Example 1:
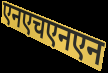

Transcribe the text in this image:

एनएचएनएन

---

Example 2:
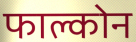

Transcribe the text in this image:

फाल्कोन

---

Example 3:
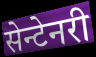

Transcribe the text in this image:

सेन्टेनरी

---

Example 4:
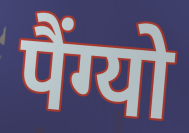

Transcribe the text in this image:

पैंग्यो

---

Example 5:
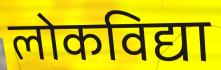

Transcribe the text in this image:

लोकविद्या